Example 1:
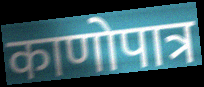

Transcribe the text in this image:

काणोपात्र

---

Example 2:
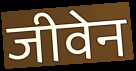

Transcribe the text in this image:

जीवेन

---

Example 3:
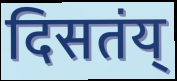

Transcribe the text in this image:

दिसतंय्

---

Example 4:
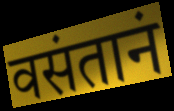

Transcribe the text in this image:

वसंतानं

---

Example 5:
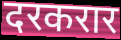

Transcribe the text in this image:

दरकरार